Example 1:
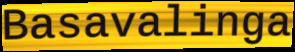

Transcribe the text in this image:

Basavalinga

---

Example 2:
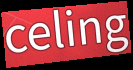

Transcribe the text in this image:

celing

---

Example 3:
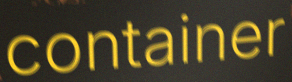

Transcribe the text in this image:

container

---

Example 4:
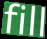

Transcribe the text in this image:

fill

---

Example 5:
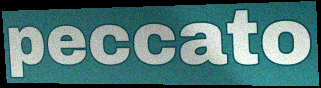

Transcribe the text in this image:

peccato